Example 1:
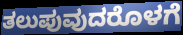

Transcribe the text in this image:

ತಲುಪುವುದರೊಳಗೆ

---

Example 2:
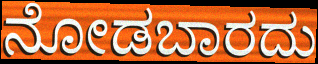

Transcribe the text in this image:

ನೋಡಬಾರದು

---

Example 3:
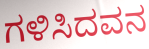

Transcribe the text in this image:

ಗಳಿಸಿದವನ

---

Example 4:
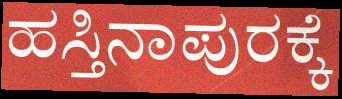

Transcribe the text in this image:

ಹಸ್ತಿನಾಪುರಕ್ಕೆ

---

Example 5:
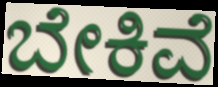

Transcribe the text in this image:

ಬೇಕಿವೆ